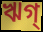
ঋগ্